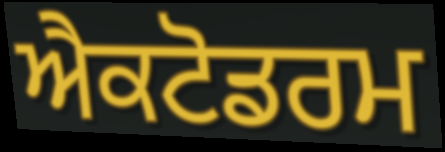
ਐਕਟੋਡਰਮ